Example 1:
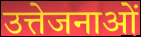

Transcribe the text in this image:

उत्तेजनाओं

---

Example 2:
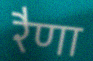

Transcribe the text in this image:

रैणा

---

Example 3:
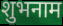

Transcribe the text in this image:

शुभनाम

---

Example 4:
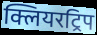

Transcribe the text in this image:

क्लियरट्रिप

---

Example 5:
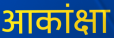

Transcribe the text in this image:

आकांक्षा